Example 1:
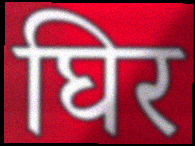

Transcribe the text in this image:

घिर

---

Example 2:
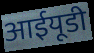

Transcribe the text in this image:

आईयूडी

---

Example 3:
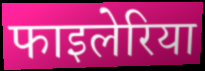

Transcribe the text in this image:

फाइलेरिया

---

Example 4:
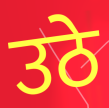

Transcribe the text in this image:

उठे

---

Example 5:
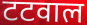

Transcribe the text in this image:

टटवाल